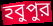
হবুপুর